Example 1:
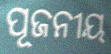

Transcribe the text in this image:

ପୂଜନୀୟ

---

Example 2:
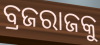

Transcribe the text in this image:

ବ୍ରଜରାଜକୁ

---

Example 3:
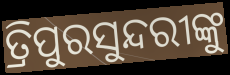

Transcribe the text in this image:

ତ୍ରିପୁରସୁନ୍ଦରୀଙ୍କୁ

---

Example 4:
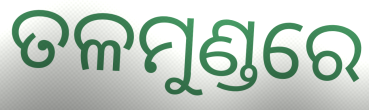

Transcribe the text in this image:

ତଳମୁଣ୍ଡରେ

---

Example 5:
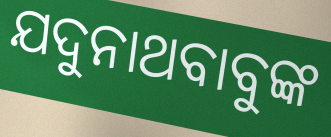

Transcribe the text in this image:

ଯଦୁନାଥବାବୁଙ୍କ